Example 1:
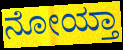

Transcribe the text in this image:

ನೋಯ್ತಾ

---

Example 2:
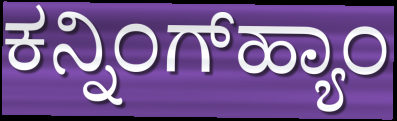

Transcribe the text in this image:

ಕನ್ನಿಂಗ್‌ಹ್ಯಾಂ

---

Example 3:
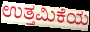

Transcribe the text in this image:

ಉತ್ತಮಿಕೆಯ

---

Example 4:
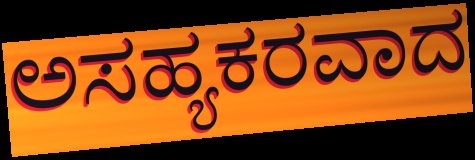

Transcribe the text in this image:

ಅಸಹ್ಯಕರವಾದ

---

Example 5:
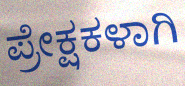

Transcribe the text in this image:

ಪ್ರೇಕ್ಷಕಳಾಗಿ